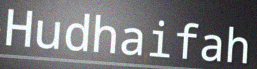
Hudhaifah